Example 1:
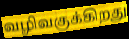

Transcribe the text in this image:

வழிவகுக்கிறது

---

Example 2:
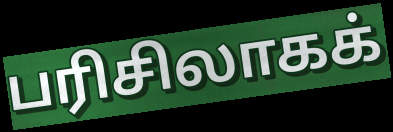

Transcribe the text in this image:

பரிசிலாகக்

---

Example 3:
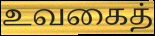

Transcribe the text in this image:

உவகைத்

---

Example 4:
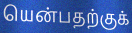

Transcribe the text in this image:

யென்பதற்குக்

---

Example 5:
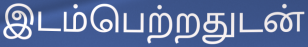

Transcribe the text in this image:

இடம்பெற்றதுடன்